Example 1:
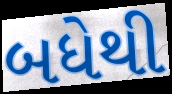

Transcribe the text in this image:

બધેથી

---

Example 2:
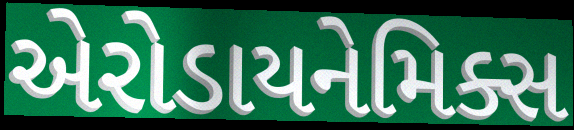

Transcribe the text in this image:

એરોડાયનેમિક્સ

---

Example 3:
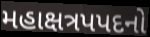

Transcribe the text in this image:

મહાક્ષત્રપપદનો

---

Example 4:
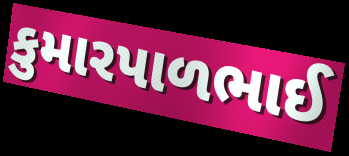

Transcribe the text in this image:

કુમારપાળભાઈ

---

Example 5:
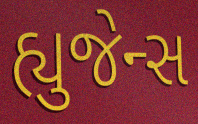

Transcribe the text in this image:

હ્યુજેન્સ